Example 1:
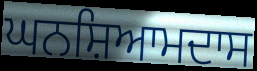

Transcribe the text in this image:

ਘਨਸ਼ਿਆਮਦਾਸ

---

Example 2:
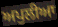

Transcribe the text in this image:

ਅਪੁਲੀਆ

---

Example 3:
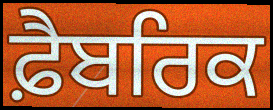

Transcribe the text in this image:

ਫ਼ੈਬਰਿਕ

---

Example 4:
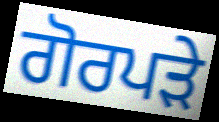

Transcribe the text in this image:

ਗੋਰਪੜੇ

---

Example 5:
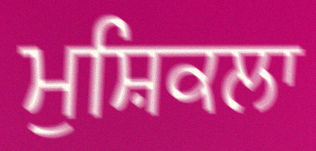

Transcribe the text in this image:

ਮੁਸ਼ਿਕਲਾ